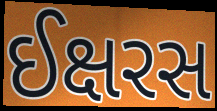
ઈક્ષરસ